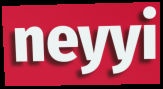
neyyi